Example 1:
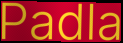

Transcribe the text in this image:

Padla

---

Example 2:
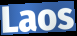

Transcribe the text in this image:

Laos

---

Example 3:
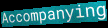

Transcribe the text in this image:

Accompanying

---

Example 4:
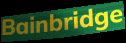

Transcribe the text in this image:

Bainbridge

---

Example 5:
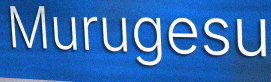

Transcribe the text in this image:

Murugesu